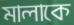
মালাকে